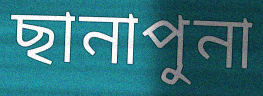
ছানাপুনা